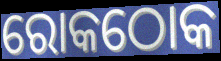
ରୋକଠୋକ